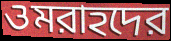
ওমরাহদের